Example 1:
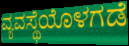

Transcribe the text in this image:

ವ್ಯವಸ್ಥೆಯೊಳಗಡೆ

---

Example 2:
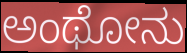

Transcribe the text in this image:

ಅಂಥೋನು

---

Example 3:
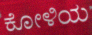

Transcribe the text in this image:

ಕೋಳಿಯ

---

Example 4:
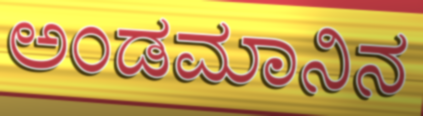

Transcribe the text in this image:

ಅಂಡಮಾನಿನ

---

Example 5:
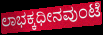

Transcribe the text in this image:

ಲಾಭಕ್ಕಧೀನವುಂಟೆ